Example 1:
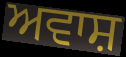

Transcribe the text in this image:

ਅਵਾਸ਼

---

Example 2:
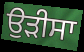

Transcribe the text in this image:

ਉੜੀਸਾ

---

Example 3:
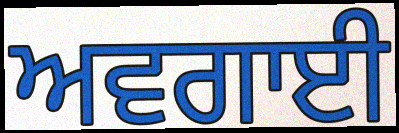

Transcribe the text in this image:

ਅਵਗਾਈ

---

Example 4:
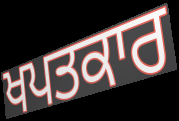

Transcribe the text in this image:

ਖਪਤਕਾਰ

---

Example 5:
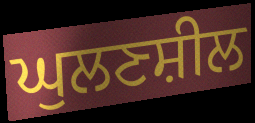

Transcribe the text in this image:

ਘੁਲਣਸ਼ੀਲ